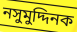
নসুমুদ্দিনক